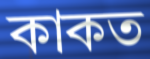
কাকত